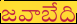
జవాబేది